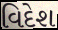
વિદેશ